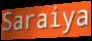
Saraiya